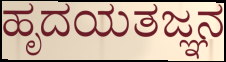
ಹೃದಯತಜ್ಞನ